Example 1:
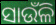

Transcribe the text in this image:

ସାଉଁଳି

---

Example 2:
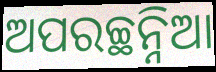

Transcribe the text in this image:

ଅପରଚ୍ଛନ୍ନିଆ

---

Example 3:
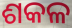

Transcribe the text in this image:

ଶକଳ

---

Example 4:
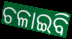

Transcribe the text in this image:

ଚଳାଇବି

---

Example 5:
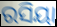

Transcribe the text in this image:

ରସିୟା